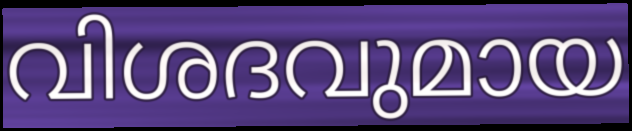
വിശദവുമായ